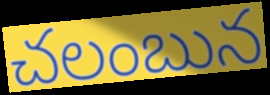
చలంబున